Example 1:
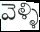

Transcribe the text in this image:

వెళ్ళి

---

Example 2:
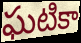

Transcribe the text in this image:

ఘటికా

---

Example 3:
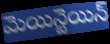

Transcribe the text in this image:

మెయిన్టెయిన్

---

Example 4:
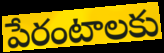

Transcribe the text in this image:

పేరంటాలకు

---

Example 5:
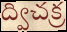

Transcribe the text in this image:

ద్విచక్ర